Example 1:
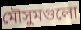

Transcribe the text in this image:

মৌসুমগুলো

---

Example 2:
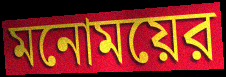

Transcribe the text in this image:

মনোময়ের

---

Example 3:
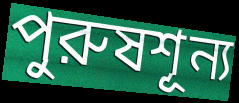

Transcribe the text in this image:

পুরুষশূন্য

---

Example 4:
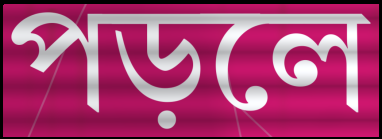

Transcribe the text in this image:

পড়লে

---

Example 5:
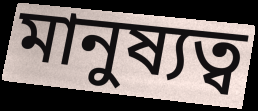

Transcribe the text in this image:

মানুষ্যত্ব